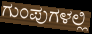
ಗುಂಪುಗಳಲ್ಲಿ